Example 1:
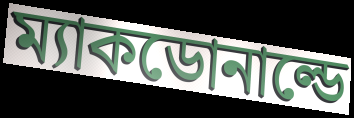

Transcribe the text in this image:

ম্যাকডোনাল্ডে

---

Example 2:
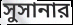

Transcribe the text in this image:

সুসানার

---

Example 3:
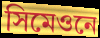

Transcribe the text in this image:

সিমেওনে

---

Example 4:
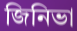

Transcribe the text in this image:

জিনিভা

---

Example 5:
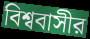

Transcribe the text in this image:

বিশ্ববাসীর